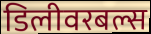
डिलीवरबल्स